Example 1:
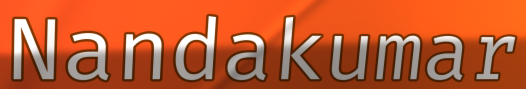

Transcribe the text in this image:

Nandakumar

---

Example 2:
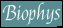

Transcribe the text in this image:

Biophys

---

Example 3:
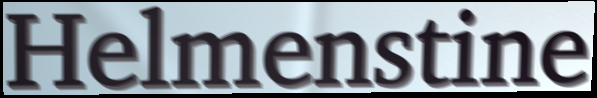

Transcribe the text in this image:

Helmenstine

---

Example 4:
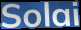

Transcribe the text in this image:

Solai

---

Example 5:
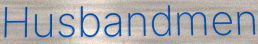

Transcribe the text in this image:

Husbandmen